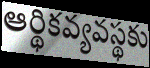
ఆర్థికవ్యవస్థకు